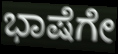
ಭಾಷೆಗೇ